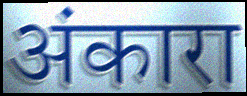
अंकारा